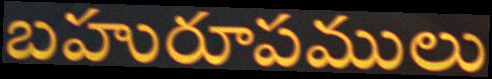
బహురూపములు